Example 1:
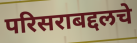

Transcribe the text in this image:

परिसराबद्दलचे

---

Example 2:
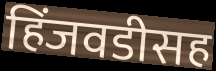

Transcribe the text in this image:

हिंजवडीसह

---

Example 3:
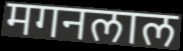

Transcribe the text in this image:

मगनलाल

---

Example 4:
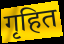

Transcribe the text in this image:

गृहित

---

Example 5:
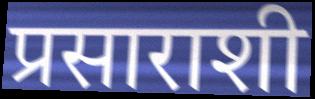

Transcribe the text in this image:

प्रसाराशी